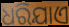
ଧରିଯାଏ